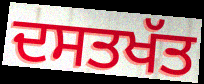
ਦਸਤਖੱਤ